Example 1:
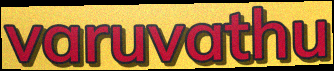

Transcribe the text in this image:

varuvathu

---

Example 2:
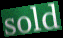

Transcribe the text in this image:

sold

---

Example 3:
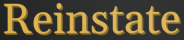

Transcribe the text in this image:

Reinstate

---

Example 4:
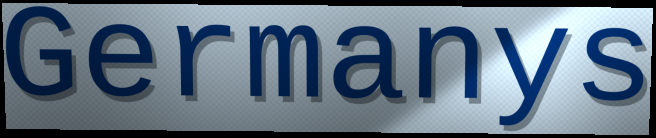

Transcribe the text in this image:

Germanys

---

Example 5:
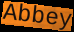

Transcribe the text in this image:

Abbey